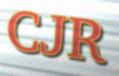
CJR